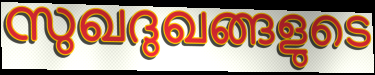
സുഖദുഖങ്ങളുടെ